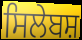
ਸਿਲੇਬਸ਼